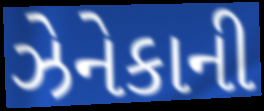
ઝેનેકાની